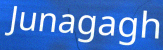
Junagagh